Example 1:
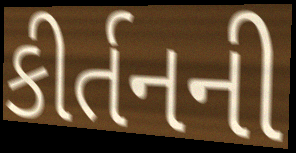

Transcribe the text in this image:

કીર્તનની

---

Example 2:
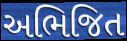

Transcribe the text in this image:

અભિજિત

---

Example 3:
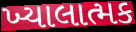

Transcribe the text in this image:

ખ્યાલાત્મક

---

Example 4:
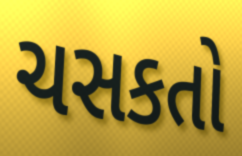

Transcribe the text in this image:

ચસકતો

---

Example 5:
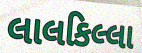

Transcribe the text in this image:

લાલકિલ્લા